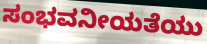
ಸಂಭವನೀಯತೆಯು